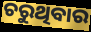
ଚରୁଥିବାର